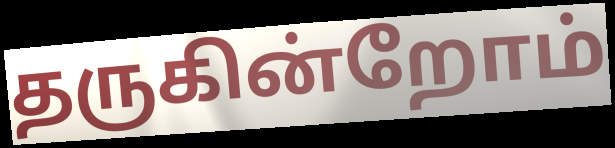
தருகின்றோம்